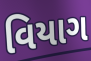
વિયાગ